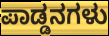
ಪಾಡ್ಡನಗಳು